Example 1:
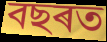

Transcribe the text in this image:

বছৰত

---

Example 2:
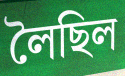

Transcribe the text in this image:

লৈছিল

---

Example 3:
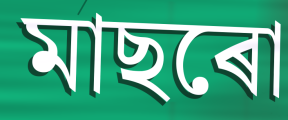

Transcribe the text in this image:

মাছৰো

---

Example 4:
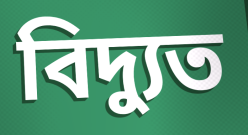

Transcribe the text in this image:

বিদ্যুত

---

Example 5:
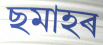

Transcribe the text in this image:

ছমাহৰ